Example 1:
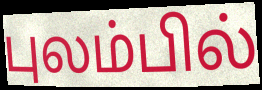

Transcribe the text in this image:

புலம்பில்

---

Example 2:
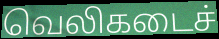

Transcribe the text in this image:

வெலிகடைச்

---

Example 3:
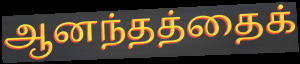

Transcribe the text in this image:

ஆனந்தத்தைக்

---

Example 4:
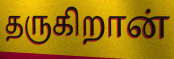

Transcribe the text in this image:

தருகிறான்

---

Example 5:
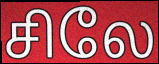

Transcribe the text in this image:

சிலே